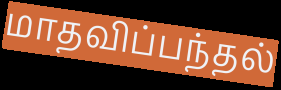
மாதவிப்பந்தல்